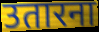
उतारना